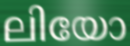
ലിയോ